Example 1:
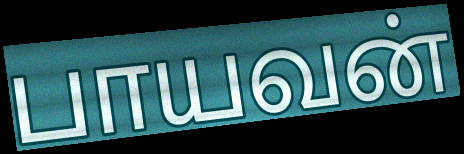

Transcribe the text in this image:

பாயவன்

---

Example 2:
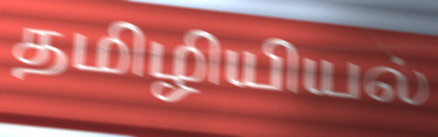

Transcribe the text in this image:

தமிழியியல்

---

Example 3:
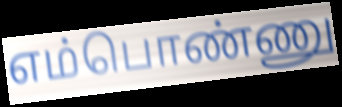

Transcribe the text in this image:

எம்பொண்ணு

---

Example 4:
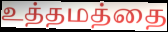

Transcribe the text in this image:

உத்தமத்தை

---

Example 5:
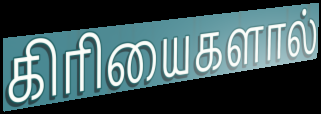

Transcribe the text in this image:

கிரியைகளால்